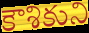
కౌశికుని